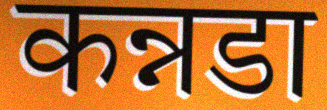
कन्नडा